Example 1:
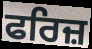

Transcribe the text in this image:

ਫਰਿਜ਼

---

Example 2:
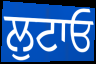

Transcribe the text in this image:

ਲੁਟਾਓ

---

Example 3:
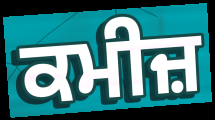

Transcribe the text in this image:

ਕਮੀਜ਼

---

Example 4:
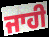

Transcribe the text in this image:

ਜਾਹੀ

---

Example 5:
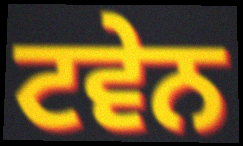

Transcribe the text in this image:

ਟਵੇਨ